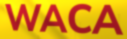
WACA